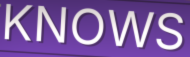
KNOWS